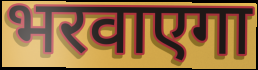
भरवाएगा